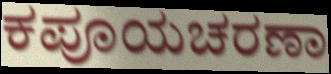
ಕಪೂಯಚರಣಾ